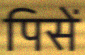
पिसें